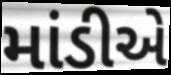
માંડીએ